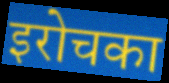
इरोचका